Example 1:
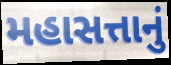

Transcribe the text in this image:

મહાસત્તાનું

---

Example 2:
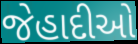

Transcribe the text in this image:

જેહાદીઓ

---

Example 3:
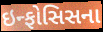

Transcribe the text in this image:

ઇન્ફોસિસના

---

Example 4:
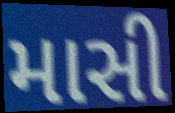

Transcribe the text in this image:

માસી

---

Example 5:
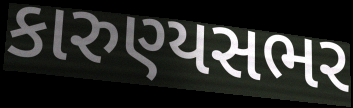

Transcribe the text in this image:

કારુણ્યસભર